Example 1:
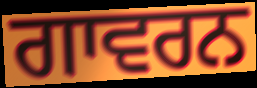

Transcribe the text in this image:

ਗਾਵਰਨ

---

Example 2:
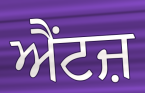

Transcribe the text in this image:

ਐਂਟਜ਼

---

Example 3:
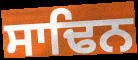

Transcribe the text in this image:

ਸਾਢਿਨ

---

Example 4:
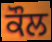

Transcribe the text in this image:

ਕੌਲ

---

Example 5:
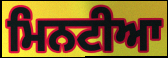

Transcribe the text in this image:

ਮਿਨਟੀਆ